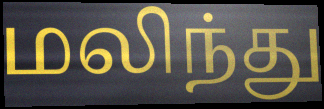
மலிந்து